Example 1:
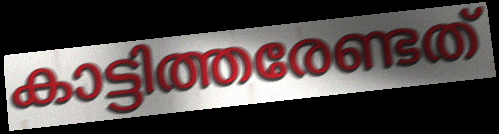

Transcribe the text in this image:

കാട്ടിത്തരേണ്ടത്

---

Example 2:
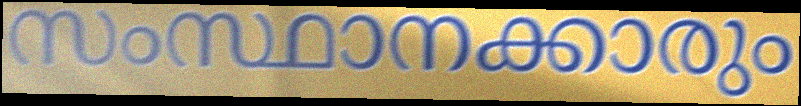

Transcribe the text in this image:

സംസ്ഥാനക്കാരും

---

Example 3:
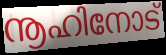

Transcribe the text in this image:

നൂഹിനോട്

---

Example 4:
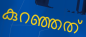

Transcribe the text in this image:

കുറഞ്ഞത്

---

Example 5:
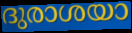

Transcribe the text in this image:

ദുരാശയാ